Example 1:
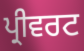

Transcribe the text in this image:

ਪ੍ਰੀਵਰਟ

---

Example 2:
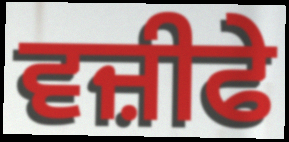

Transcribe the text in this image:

ਵਜ਼ੀਫੇ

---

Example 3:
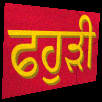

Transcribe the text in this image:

ਫਹੁੜੀ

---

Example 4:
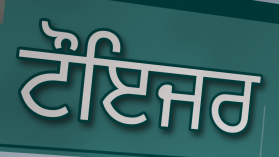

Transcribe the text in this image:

ਟੌਇਜਰ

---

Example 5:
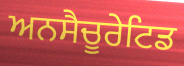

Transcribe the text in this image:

ਅਨਸੈਚੂਰੇਟਿਡ